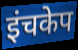
इंचकेप